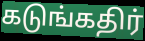
கடுங்கதிர்